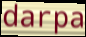
darpa